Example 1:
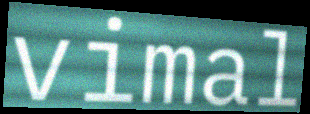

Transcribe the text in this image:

vimal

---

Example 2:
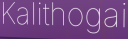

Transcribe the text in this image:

Kalithogai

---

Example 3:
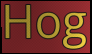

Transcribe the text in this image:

Hog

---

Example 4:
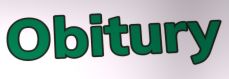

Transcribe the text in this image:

Obitury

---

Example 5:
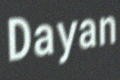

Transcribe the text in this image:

Dayan